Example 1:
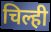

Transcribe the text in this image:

चिल्ही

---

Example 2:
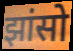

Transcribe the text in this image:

झांसो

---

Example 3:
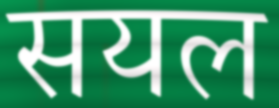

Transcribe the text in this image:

सयल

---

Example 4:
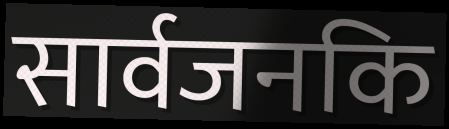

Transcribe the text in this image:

सार्वजनकि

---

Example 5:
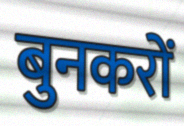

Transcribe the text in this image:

बुनकरों